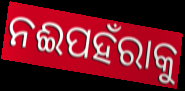
ନଈପହଁରାକୁ